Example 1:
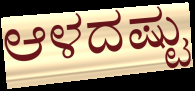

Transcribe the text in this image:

ಆಳದಷ್ಟು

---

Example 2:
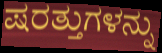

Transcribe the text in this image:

ಷರತ್ತುಗಳನ್ನು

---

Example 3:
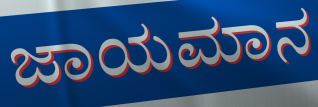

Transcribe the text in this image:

ಜಾಯಮಾನ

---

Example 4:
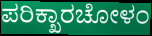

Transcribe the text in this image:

ಪರಿಕ್ಖಾರಚೋಳಂ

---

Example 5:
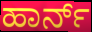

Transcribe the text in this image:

ಹಾರ್ನ್